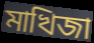
মাখিজা